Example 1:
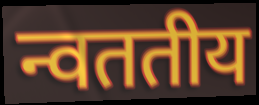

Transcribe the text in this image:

न्वततीय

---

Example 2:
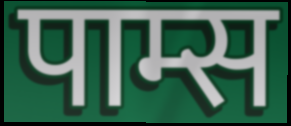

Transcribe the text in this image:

पाम्स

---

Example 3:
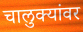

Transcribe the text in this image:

चालुक्यांवर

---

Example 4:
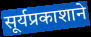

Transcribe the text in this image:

सूर्यप्रकाशाने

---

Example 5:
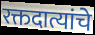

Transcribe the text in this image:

रक्तदात्यांचे